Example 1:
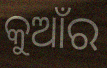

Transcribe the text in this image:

କୁଆଁର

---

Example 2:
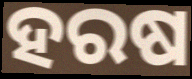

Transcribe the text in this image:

ହରଷ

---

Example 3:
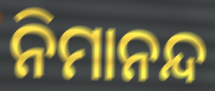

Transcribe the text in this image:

ନିମାନନ୍ଦ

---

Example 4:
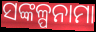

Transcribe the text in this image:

ସଙ୍କଳ୍ପନାମା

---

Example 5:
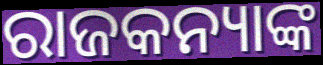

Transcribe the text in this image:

ରାଜକନ୍ୟାଙ୍କ